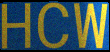
HCW